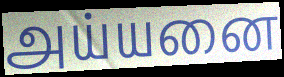
அய்யனை